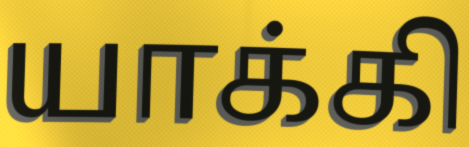
யாக்கி